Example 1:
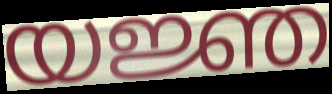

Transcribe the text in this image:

യജ്ഞ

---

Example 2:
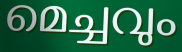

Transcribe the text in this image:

മെച്ചവും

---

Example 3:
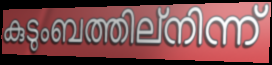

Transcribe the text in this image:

കുടുംബത്തില്നിന്ന്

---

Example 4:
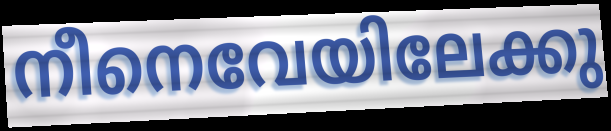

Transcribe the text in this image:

നീനെവേയിലേക്കു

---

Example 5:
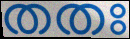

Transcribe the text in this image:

തതഃ